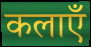
कलाएँ